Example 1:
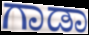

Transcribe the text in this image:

ಗಾಡಾ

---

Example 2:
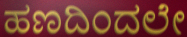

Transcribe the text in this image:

ಹಣದಿಂದಲೇ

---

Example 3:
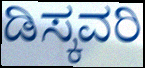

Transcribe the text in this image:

ಡಿಸ್ಕವರಿ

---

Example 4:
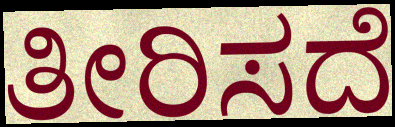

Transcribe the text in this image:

ತೀರಿಸದೆ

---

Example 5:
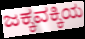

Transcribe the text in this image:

ಜಕ್ಕವಕ್ಕಿಯ